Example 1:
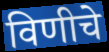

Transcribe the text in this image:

विणीचे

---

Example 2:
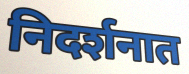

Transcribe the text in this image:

निदर्शनात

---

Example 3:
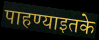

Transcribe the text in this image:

पाहण्याइतके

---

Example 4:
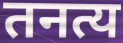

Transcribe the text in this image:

तनत्य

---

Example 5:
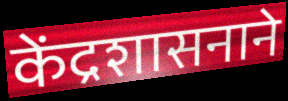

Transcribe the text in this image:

केंद्रशासनाने